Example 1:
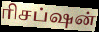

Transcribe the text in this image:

ரிசப்ஷன்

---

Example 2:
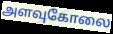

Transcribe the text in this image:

அளவுகோலை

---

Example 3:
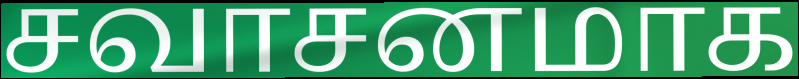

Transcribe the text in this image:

சவாசனமாக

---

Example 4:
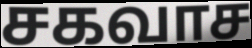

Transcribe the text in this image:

சகவாச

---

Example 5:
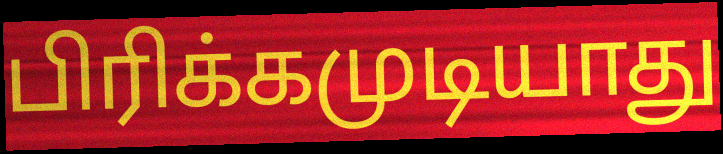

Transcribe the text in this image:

பிரிக்கமுடியாது